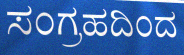
ಸಂಗ್ರಹದಿಂದ